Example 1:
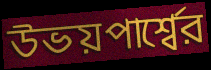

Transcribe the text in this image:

উভয়পার্শ্বের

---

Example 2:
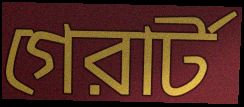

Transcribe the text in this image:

গেরার্ট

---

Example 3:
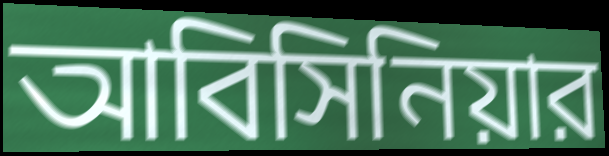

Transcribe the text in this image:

আবিসিনিয়ার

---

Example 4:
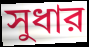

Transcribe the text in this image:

সুধার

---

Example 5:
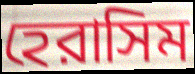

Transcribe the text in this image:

হেরাসিম